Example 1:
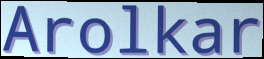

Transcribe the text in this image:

Arolkar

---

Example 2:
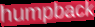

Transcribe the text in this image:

humpback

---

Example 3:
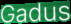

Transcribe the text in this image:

Gadus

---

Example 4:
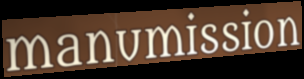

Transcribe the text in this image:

manumission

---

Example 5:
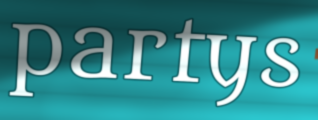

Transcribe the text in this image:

partys